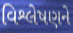
વિશ્લેષણને